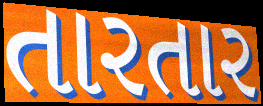
તારતાર